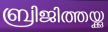
ബ്രിജിത്തയ്ക്കു